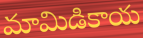
మామిడికాయ